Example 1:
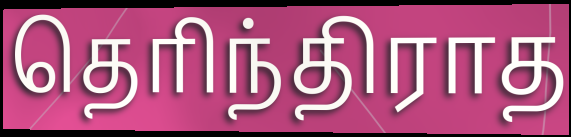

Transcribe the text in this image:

தெரிந்திராத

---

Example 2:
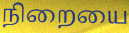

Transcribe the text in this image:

நிறையை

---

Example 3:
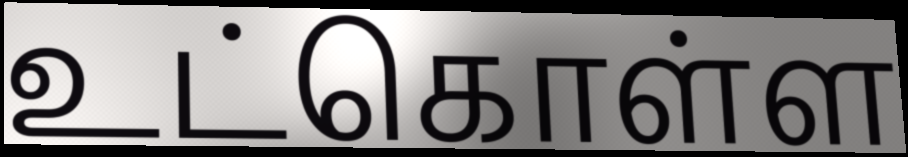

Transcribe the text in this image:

உட்கொள்ள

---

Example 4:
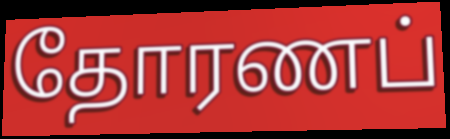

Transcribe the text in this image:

தோரணப்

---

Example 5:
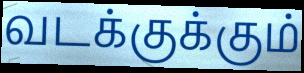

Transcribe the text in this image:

வடக்குக்கும்